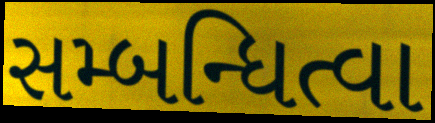
સમ્બન્ધિત્વા